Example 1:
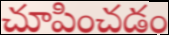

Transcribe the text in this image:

చూపించడం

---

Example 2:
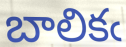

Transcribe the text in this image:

బాలికఁ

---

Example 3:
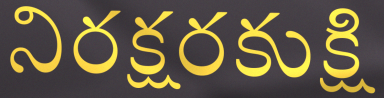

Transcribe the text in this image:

నిరక్షరకుక్షి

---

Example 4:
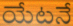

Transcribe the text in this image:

యేటనే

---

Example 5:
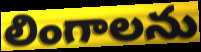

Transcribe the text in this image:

లింగాలను